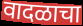
वादळाचा